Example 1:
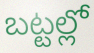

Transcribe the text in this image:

బట్టల్లో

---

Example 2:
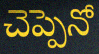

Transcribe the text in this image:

చెప్పెనో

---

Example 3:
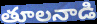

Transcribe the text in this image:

తూలనాడి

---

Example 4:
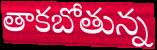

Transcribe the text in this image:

తాకబోతున్న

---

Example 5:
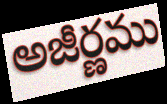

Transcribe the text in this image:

అజీర్ణము